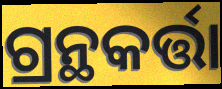
ଗ୍ରନ୍ଥକର୍ତ୍ତା